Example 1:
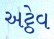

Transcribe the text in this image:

અટ્ઠેવ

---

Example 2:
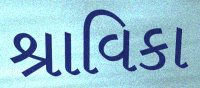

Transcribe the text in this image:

શ્રાવિકા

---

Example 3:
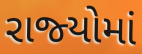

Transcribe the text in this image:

રાજ્‍યોમાં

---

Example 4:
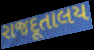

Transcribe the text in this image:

રાજદૂતાલય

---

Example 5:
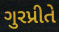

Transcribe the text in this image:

ગુરપ્રીતે